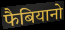
फैबियानो